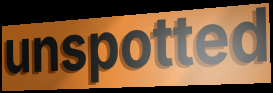
unspotted